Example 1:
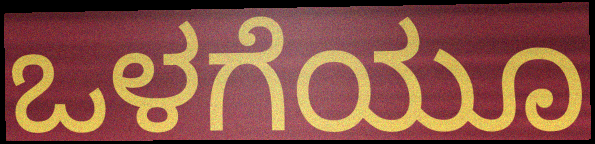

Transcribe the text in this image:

ಒಳಗೆಯೂ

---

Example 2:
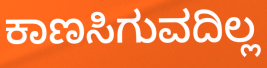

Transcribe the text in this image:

ಕಾಣಸಿಗುವದಿಲ್ಲ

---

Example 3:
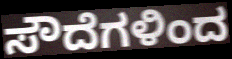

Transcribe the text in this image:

ಸೌದೆಗಳಿಂದ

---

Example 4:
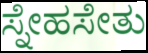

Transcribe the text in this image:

ಸ್ನೇಹಸೇತು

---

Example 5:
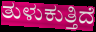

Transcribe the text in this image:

ತುಳುಕುತ್ತಿದೆ